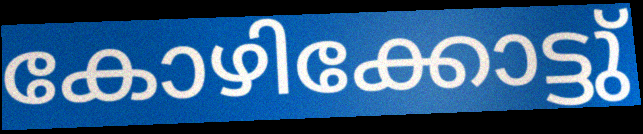
കോഴിക്കോട്ടു്